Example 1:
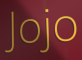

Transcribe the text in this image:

Jojo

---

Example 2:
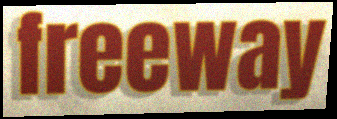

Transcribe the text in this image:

freeway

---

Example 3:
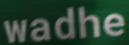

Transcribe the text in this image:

wadhe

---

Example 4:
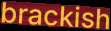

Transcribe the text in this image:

brackish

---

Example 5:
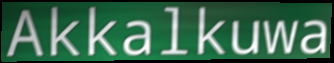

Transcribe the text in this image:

Akkalkuwa